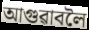
আগুৱাবলৈ